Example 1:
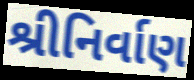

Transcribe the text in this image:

શ્રીનિર્વાણ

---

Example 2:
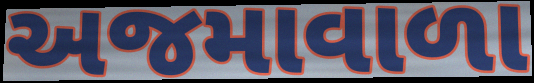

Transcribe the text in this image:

અજમાવાળા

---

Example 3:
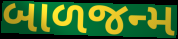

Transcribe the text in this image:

બાળજન્મ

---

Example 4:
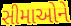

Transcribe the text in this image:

સીમાઓને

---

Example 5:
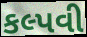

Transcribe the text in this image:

કલ્પવી